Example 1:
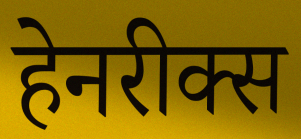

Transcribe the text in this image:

हेनरीक्स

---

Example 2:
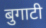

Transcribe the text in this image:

बुगाटी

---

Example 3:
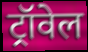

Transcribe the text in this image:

ट्रॉवेल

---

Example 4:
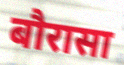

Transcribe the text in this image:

बौरासा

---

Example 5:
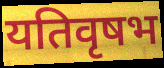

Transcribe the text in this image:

यतिवृषभ